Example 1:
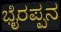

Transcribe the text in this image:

ಭೈರಪ್ಪನ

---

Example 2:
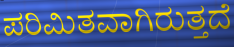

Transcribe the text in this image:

ಪರಿಮಿತವಾಗಿರುತ್ತದೆ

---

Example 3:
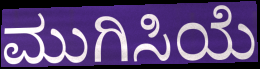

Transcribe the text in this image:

ಮುಗಿಸಿಯೆ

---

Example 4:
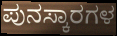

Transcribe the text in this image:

ಪುನಸ್ಕಾರಗಳ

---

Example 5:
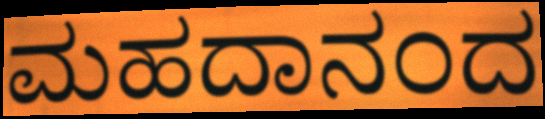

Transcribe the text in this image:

ಮಹದಾನಂದ